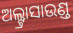
ଅଲ୍ଟ୍ରାସାଉଣ୍ଡ